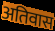
अतिवास